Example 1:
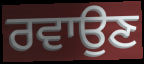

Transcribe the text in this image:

ਰਵਾਉਣ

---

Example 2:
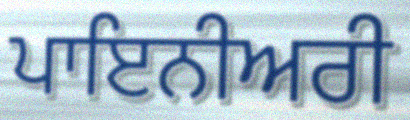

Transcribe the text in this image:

ਪਾਇਨੀਅਰੀ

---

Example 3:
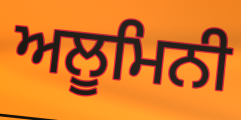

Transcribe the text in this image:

ਅਲੂਮਿਨੀ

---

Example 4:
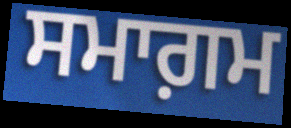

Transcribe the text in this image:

ਸਮਾਗ਼ਮ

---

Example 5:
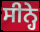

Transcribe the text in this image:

ਸੀਨ੍ਹੇ